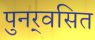
पुनर्वसित